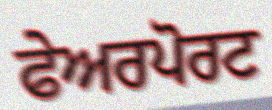
ਫੇਅਰਪੋਰਟ